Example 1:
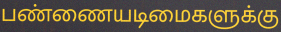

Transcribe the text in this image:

பண்ணையடிமைகளுக்கு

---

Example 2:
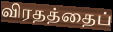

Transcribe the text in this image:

விரதத்தைப்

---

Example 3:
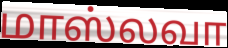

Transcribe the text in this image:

மாஸ்லவா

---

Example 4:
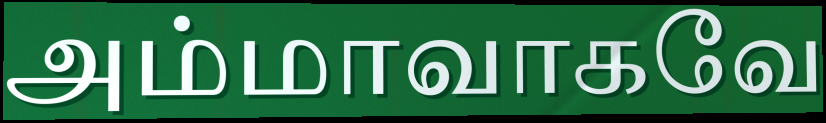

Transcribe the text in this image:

அம்மாவாகவே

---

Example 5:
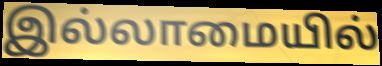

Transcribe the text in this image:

இல்லாமையில்